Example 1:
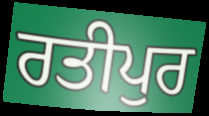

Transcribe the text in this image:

ਰਤੀਪੁਰ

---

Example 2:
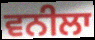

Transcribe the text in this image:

ਵਨੀਲਾ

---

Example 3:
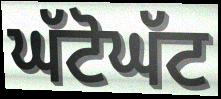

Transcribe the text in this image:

ਘੱਟੋਘੱਟ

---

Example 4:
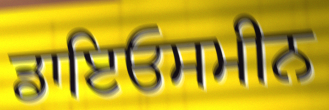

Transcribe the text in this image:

ਡਾਇਓਸਮੀਨ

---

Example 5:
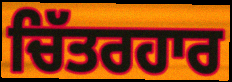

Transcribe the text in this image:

ਚਿੱਤਰਹਾਰ